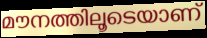
മൗനത്തിലൂടെയാണ്